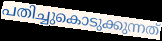
പതിച്ചുകൊടുക്കുന്നത്